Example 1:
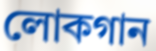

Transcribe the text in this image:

লোকগান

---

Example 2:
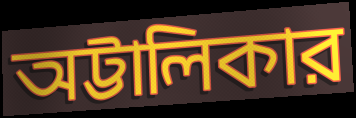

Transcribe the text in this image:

অট্টালিকার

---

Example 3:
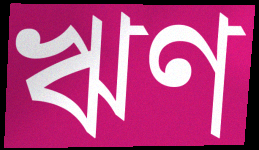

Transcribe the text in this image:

ঋণ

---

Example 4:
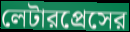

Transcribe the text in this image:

লেটারপ্রেসের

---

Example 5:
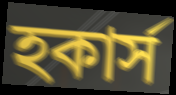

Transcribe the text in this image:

হকার্স